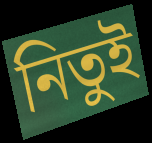
নিতুই